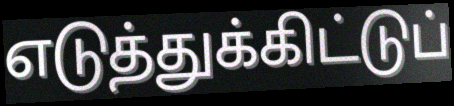
எடுத்துக்கிட்டுப்